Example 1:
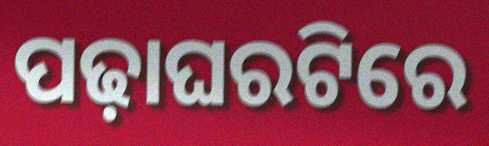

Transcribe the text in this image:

ପଢ଼ାଘରଟିରେ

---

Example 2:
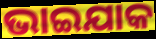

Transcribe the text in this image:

ଭାଇଯାକ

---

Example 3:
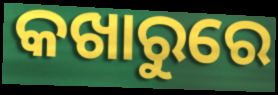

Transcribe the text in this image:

କଖାରୁରେ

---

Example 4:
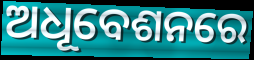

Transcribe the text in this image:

ଅଧୂବେଶନରେ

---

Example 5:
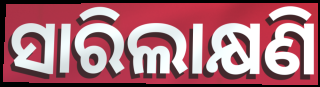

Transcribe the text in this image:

ସାରିଲାକ୍ଷଣି